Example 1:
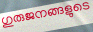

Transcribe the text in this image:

ഗുരുജനങ്ങളുടെ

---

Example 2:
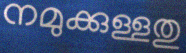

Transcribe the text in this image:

നമുക്കുള്ളതു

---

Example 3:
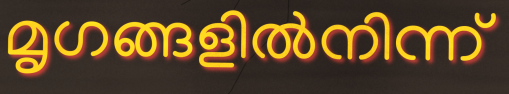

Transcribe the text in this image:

മൃഗങ്ങളിൽനിന്ന്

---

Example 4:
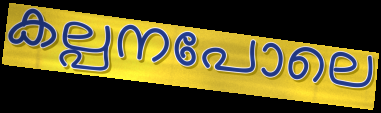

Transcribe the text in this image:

കല്പനപോലെ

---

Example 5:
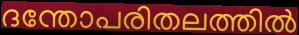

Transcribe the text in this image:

ദന്തോപരിതലത്തിൽ